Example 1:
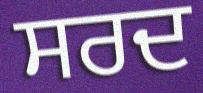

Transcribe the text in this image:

ਸਰਦ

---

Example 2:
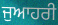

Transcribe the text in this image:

ਜੁਆਹਰੀ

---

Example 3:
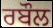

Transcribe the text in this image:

ਰਬੌਲ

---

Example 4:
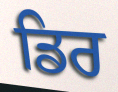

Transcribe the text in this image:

ਡਿਰ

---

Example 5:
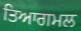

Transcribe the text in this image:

ਤਿਆਗਮਲ